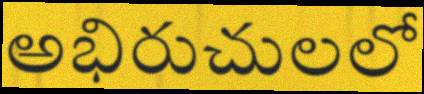
అభిరుచులలో